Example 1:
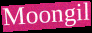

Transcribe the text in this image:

Moongil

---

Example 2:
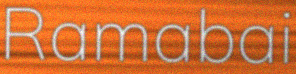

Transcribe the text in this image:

Ramabai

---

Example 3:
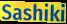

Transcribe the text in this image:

Sashiki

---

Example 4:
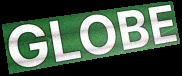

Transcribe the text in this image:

GLOBE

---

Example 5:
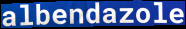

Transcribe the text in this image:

albendazole